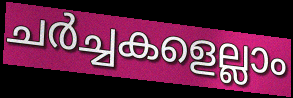
ചർച്ചകളെല്ലാം